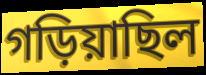
গড়িয়াছিল